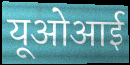
यूओआई